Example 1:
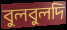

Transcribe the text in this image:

বুলবুলদি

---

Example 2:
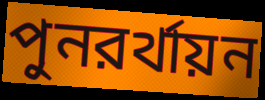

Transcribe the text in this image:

পুনরর্থায়ন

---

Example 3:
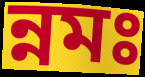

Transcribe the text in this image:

ন্নমঃ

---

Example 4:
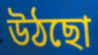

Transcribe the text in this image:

উঠছো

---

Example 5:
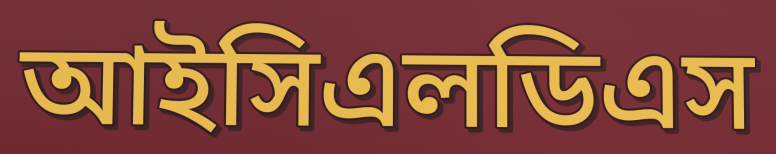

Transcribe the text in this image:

আইসিএলডিএস